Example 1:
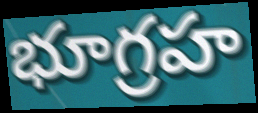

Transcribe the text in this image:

భూగ్రహ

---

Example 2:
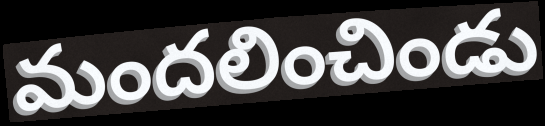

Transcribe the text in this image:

మందలించిండు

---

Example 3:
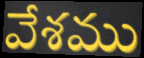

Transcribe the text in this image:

వేశము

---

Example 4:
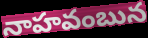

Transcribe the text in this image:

నాహవంబున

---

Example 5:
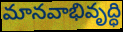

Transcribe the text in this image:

మానవాభివృద్ధి